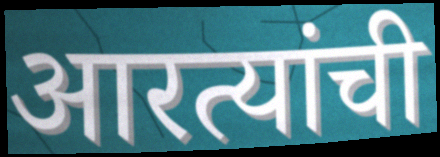
आरत्यांची